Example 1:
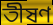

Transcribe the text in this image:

তীষণ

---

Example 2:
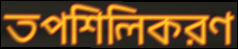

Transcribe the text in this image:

তপশিলিকরণ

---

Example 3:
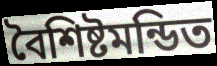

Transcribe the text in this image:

বৈশিষ্টমন্ডিত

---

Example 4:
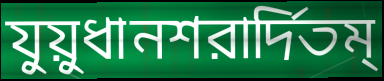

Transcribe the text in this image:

যুয়ুধানশরার্দিতম্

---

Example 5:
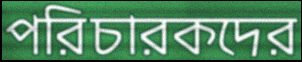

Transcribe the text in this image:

পরিচারকদের